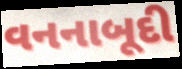
વનનાબૂદી